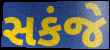
સકંજે